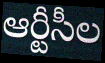
ఆర్టీసీల